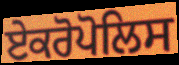
ਏਕਰੋਪੋਲਿਸ